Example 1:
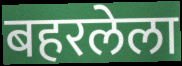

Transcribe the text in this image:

बहरलेला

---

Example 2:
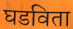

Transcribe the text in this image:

घडविता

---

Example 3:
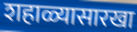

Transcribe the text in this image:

शहाळ्यासारखा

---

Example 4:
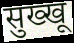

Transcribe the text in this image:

सुख्खू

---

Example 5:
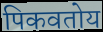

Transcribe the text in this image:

पिकवतोय